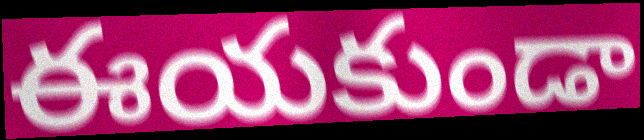
ఈయకుండా